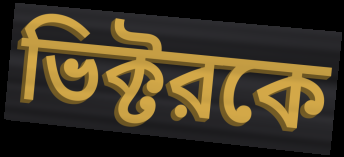
ভিক্টরকে